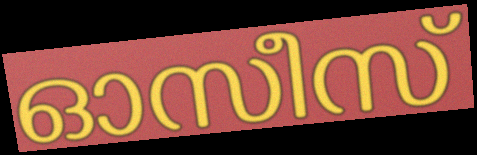
ഓസീസ്